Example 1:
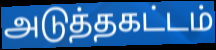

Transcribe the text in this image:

அடுத்தகட்டம்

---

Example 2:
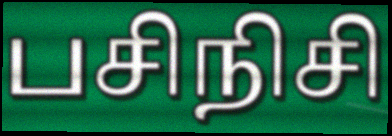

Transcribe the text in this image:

பசிநிசி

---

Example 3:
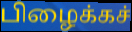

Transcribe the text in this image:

பிழைக்கச்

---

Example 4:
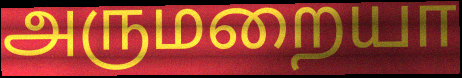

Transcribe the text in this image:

அருமறையா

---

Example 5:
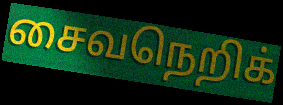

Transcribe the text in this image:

சைவநெறிக்